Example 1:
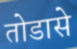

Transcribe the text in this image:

तोडासे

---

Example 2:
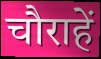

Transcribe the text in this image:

चौराहें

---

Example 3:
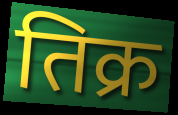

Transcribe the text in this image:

तिक्र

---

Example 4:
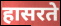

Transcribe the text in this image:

हासरते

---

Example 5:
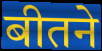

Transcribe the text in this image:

बीतने